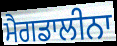
ਮੈਗਡਾਲੀਨਾ